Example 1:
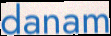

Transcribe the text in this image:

danam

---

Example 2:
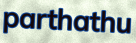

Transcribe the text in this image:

parthathu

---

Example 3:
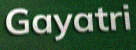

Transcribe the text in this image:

Gayatri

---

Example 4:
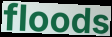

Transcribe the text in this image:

floods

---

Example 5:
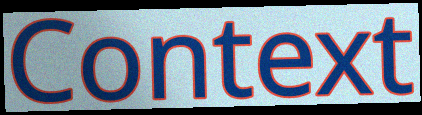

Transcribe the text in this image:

Context